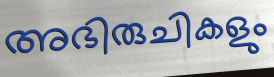
അഭിരുചികളും